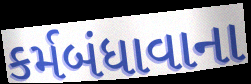
કર્મબંધાવાના